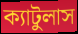
ক্যাটুলাস